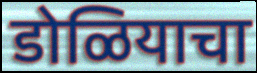
डोळियाचा